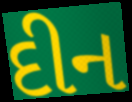
દીન